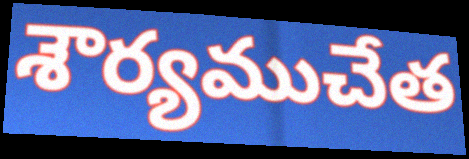
శౌర్యముచేత